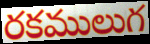
రకములుగ